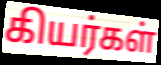
கியர்கள்